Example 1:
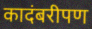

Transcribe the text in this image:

कादंबरीपण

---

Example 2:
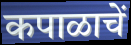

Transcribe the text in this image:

कपाळाचें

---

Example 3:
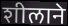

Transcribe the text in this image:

शीलाने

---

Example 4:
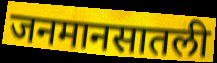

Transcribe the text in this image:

जनमानसातली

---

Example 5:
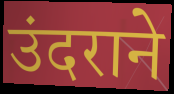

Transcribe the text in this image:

उंदराने